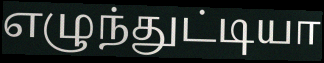
எழுந்துட்டியா